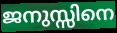
ജനുസ്സിനെ